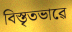
বিস্তৃতভাৱে